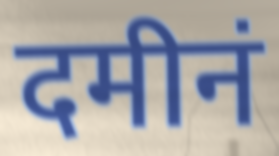
दमीनं